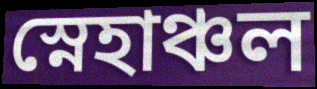
স্নেহাঞ্চল